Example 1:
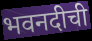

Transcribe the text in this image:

भवनदीची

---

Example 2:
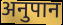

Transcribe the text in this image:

अनुपान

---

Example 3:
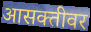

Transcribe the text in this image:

आसक्तीवर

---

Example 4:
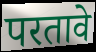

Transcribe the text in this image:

परतावे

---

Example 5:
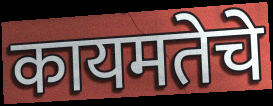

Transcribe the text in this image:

कायमतेचे